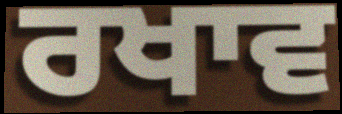
ਰਖਾਵ